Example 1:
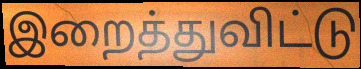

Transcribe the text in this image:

இறைத்துவிட்டு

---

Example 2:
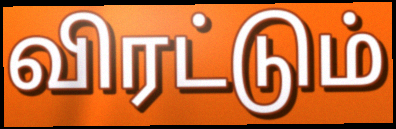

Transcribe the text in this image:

விரட்டும்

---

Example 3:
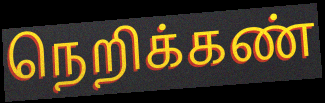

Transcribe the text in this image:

நெறிக்கண்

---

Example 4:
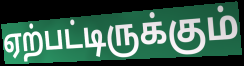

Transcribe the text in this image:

ஏற்பட்டிருக்கும்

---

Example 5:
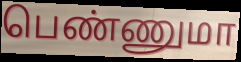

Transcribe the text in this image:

பெண்ணுமா